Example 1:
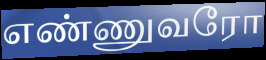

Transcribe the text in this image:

எண்ணுவரோ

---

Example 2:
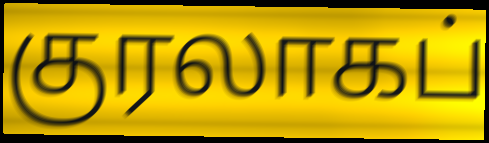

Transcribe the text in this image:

குரலாகப்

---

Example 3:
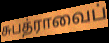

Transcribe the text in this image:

சுபத்ராவைப்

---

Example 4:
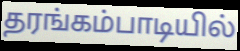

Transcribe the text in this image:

தரங்கம்பாடியில்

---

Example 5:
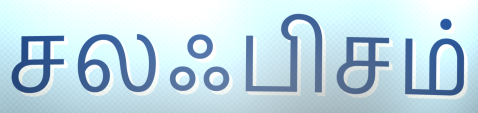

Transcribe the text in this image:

சலஃபிசம்